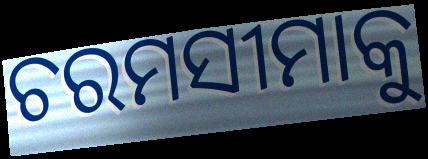
ଚରମସୀମାକୁ